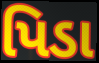
પિડા